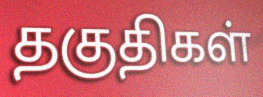
தகுதிகள்